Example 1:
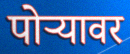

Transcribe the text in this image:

पोर्‍यावर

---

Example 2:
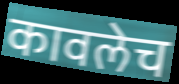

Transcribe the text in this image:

कावलेच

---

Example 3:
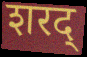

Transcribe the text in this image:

शरद्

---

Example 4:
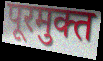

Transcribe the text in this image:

पूरमुक्त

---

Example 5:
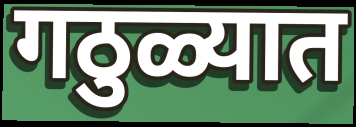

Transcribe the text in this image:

गठुळ्यात